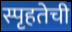
स्पृहतेची